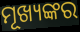
ମୂଖ୍ୟଙ୍କର